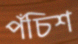
পঁচিশ